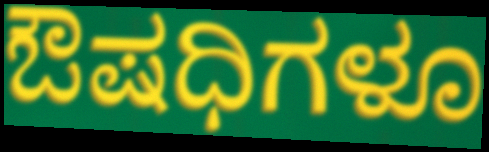
ಔಷಧಿಗಳೂ